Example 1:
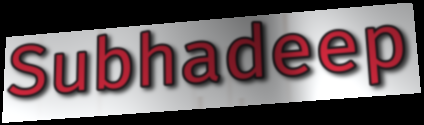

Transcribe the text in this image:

Subhadeep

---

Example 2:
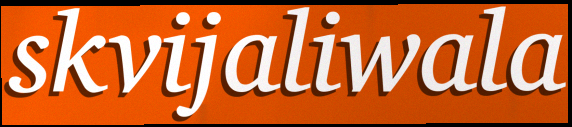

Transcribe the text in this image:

skvijaliwala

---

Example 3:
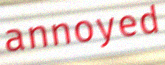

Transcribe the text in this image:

annoyed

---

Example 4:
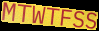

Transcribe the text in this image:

MTWTFSS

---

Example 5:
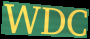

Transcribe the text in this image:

WDC